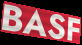
BASF